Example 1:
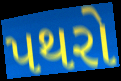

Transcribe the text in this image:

પથરો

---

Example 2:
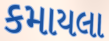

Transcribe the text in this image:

કમાયલા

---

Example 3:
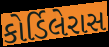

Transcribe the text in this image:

કોર્ડિલેરાસ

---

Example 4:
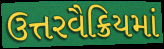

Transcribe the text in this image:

ઉત્તરવૈક્રિયમાં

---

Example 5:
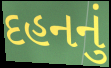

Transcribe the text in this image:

દહનનું